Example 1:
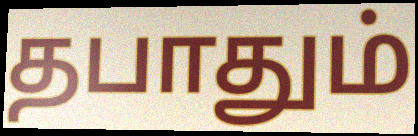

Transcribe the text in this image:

தபாதும்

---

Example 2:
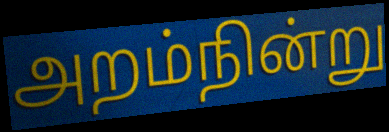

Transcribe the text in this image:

அறம்நின்று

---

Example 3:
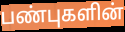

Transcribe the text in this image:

பண்புகளின்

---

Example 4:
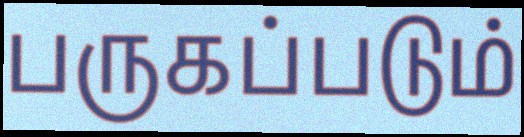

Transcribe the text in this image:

பருகப்படும்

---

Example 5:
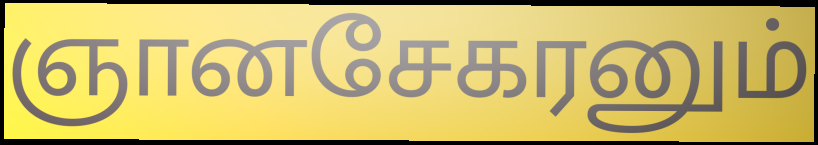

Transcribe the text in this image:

ஞானசேகரனும்